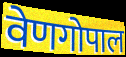
वेणगोपाल